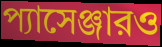
প্যাসেঞ্জারও